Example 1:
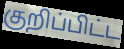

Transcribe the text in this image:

குறிப்பிட்ட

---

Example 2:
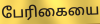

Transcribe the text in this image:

பேரிகையை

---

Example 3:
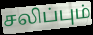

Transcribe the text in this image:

சலிப்பும்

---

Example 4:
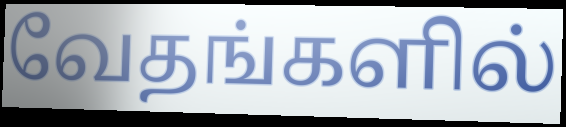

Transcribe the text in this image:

வேதங்களில்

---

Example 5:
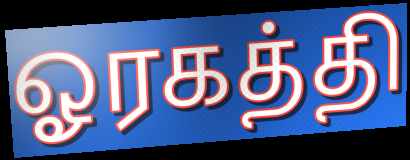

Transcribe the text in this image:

ஓரகத்தி